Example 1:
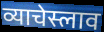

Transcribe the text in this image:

व्याचेस्लाव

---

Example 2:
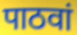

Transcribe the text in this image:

पाठवां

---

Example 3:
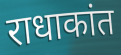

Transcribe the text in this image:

राधाकांत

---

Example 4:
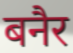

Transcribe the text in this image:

बनैर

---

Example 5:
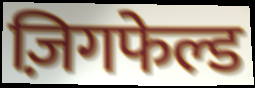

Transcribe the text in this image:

ज़िगफेल्ड